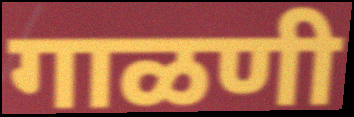
गाळणी